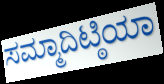
ಸಮ್ಮಾದಿಟ್ಠಿಯಾ